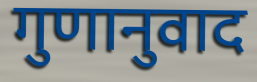
गुणानुवाद